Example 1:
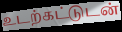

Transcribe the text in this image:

உடற்கட்டுடன்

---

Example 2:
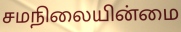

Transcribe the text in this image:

சமநிலையின்மை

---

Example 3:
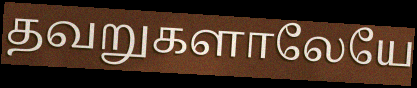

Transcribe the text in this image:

தவறுகளாலேயே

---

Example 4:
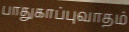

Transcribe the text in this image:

பாதுகாப்புவாதம்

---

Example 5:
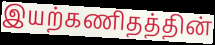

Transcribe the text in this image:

இயற்கணிதத்தின்